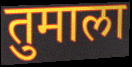
तुमाला